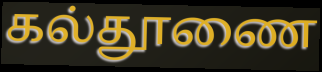
கல்தூணை